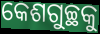
କେଶଗୁଚ୍ଛକୁ